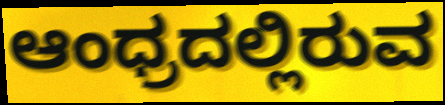
ಆಂಧ್ರದಲ್ಲಿರುವ